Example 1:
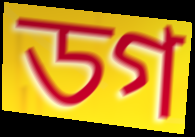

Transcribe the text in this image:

ডগ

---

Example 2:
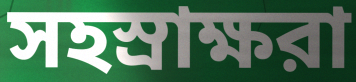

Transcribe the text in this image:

সহস্রাক্ষরা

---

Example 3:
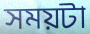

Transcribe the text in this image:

সময়টা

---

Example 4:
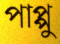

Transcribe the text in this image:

পাপ্পু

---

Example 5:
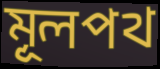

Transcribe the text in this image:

মূলপথ